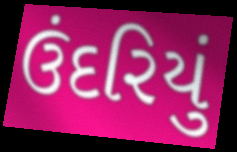
ઉંદરિયું